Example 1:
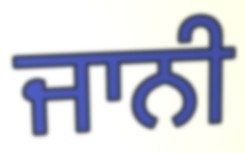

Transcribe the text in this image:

ਜਾਨੀ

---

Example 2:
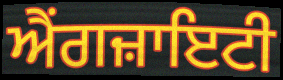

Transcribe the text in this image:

ਐਂਗਜ਼ਾਇਟੀ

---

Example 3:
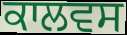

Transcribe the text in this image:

ਕਾਲਵਸ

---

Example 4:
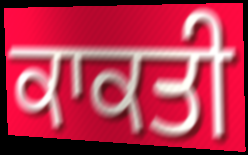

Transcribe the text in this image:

ਕਾਕਤੀ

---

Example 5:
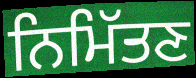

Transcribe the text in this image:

ਨਿਮਿੱਤਣ